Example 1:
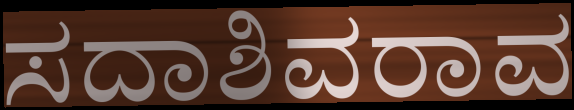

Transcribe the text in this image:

ಸದಾಶಿವರಾವ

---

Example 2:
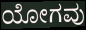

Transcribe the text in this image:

ಯೋಗವು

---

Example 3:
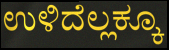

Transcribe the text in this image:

ಉಳಿದೆಲ್ಲಕ್ಕೂ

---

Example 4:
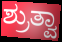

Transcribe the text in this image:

ಶ್ರುತ್ವಾ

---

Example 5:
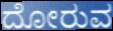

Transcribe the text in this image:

ದೋರುವ